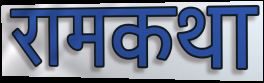
रामकथा